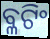
ବ୍ଳଟିଂ